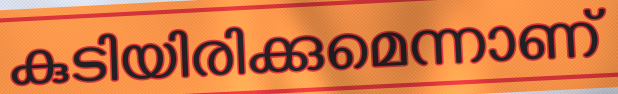
കുടിയിരിക്കുമെന്നാണ്